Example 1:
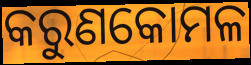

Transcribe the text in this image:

କରୁଣକୋମଳ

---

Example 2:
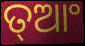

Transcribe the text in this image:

ତ୍ଆଂ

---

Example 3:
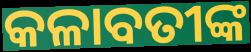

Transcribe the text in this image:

କଳାବତୀଙ୍କ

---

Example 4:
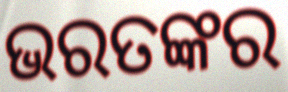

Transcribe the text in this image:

ଭରତଙ୍କର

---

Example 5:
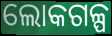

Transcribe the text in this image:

ଲୋକଗଳ୍ପ